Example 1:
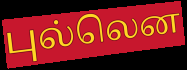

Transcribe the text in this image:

புல்லென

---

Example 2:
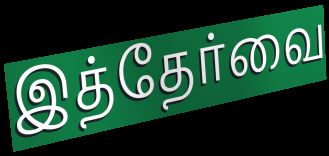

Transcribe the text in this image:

இத்தேர்வை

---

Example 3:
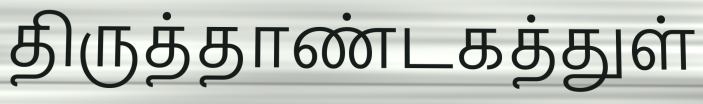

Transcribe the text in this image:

திருத்தாண்டகத்துள்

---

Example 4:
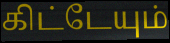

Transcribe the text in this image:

கிட்டேயும்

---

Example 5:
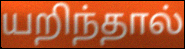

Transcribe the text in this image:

யறிந்தால்